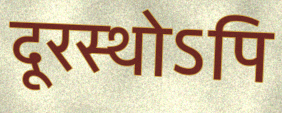
दूरस्थोऽपि